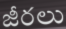
జీరలు